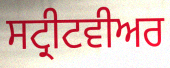
ਸਟ੍ਰੀਟਵੀਅਰ